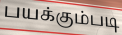
பயக்கும்படி